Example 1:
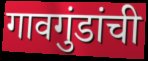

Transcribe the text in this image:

गावगुंडांची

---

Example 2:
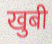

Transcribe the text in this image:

खुबी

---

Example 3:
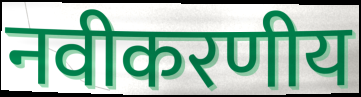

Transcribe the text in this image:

नवीकरणीय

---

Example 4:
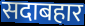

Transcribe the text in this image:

सदाबहार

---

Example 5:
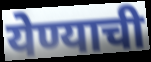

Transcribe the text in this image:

येण्याची